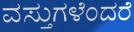
ವಸ್ತುಗಳೆಂದರೆ